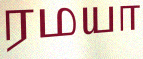
ரமயா